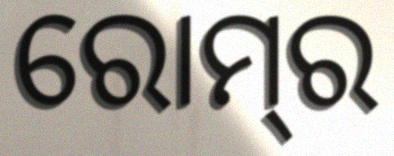
ରୋମ୍‌ର